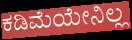
ಕಡಿಮೆಯೇನಿಲ್ಲ